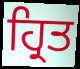
ਹ੍ਰਿਤ